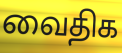
வைதிக